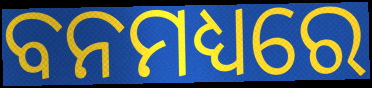
ବନମଧ୍ୟରେ